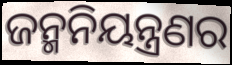
ଜନ୍ମନିୟନ୍ତ୍ରଣର